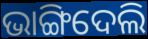
ଭାଙ୍ଗିଦେଲି